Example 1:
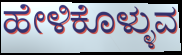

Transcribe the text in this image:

ಹೇಳಿಕೊಳ್ಳುವ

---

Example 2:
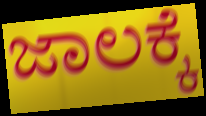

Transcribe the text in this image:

ಜಾಲಕ್ಕೆ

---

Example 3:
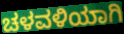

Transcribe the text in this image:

ಚಳವಳಿಯಾಗಿ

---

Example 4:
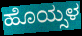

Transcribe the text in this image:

ಹೊಯ್ಸಳ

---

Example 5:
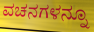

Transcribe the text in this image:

ವಚನಗಳನ್ನೂ